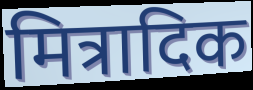
मित्रादिक